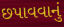
છપાવવાનું